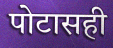
पोटासही